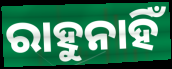
ରାହୁନାହିଁ